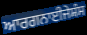
ਆਰਗਨਾਈਜੇਸ਼ੰਸ